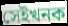
সেইখনক